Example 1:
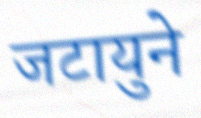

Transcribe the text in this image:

जटायुने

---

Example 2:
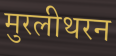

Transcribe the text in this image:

मुरलीथरन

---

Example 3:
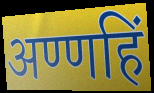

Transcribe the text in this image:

अण्णहिं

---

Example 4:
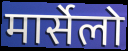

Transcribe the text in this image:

मार्सेलो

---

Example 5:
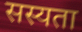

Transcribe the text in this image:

सस्यता